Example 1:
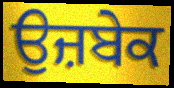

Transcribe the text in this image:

ਉਜ਼ਬੇਕ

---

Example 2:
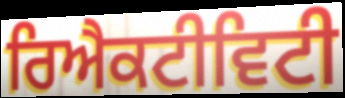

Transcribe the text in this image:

ਰਿਐਕਟੀਵਿਟੀ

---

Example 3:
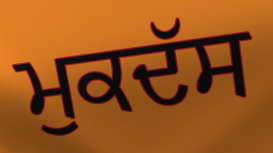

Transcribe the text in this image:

ਮੁਕਦੱਸ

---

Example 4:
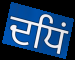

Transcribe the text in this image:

ਦਧਿਂ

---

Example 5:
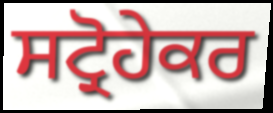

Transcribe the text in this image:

ਸਟ੍ਰੋਹੇਕਰ